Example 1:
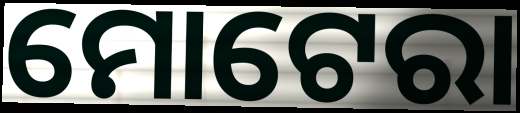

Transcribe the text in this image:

ମୋଟେରା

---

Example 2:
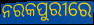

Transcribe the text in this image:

ନରକପୁରୀରେ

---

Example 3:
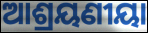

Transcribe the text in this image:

ଆଶ୍ରୟଣୀୟା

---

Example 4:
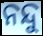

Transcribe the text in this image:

ନନ୍ଦୁ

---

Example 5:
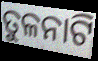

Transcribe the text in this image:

ତୁଳନାଟି